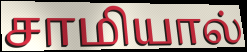
சாமியால்